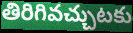
తిరిగివచ్చుటకు